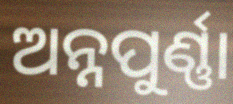
ଅନ୍ନପୁର୍ଣ୍ଣା